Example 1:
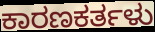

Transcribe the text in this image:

ಕಾರಣಕರ್ತಳು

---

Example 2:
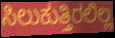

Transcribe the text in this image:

ಸಿಲುಕುತ್ತಿರಲಿಲ್ಲ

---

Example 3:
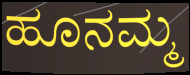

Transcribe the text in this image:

ಹೂನಮ್ಮ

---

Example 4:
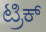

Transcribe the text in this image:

ಟ್ರಿಕ್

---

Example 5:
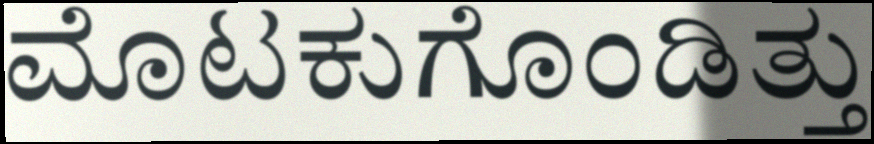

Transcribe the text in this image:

ಮೊಟಕುಗೊಂಡಿತ್ತು